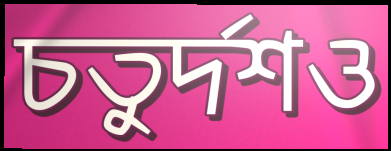
চতুর্দশও